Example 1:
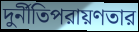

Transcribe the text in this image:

দুর্নীতিপরায়ণতার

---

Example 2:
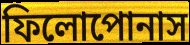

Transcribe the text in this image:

ফিলোপোনাস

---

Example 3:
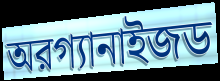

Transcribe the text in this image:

অরগ্যানাইজড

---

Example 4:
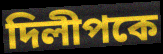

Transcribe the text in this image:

দিলীপকে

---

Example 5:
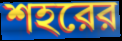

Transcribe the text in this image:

শহরের